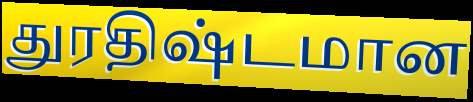
துரதிஷ்டமான